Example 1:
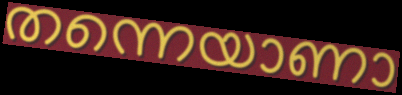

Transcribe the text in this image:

തന്നെയാണാ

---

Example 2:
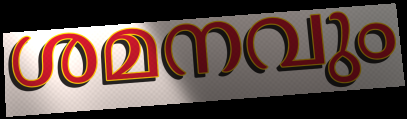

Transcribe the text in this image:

ശമനവും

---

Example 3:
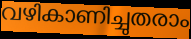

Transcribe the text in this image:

വഴികാണിച്ചുതരാം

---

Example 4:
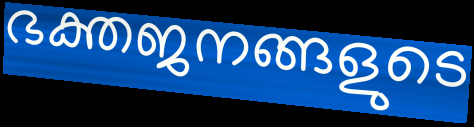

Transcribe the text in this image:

ഭക്തജനങ്ങളുടെ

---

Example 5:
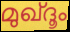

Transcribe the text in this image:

മുഖ്ദൂം